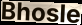
Bhosle